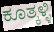
ಕೂತ್ಕಳ್ಳಿ